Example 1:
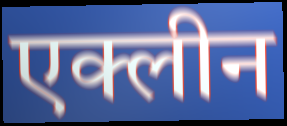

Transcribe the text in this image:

एक्लीन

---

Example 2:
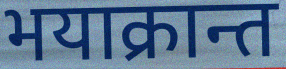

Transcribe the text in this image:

भयाक्रान्त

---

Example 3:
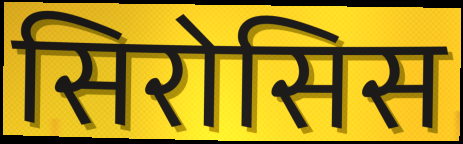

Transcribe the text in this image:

सिरोसिस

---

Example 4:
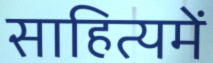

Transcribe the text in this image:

साहित्यमें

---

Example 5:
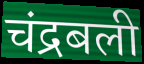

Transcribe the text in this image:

चंद्रबली